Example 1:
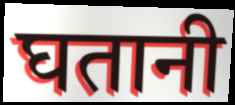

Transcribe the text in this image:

घतानी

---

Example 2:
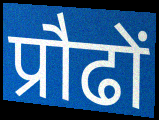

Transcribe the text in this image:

प्रौढों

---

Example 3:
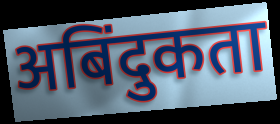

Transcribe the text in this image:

अबिंदुकता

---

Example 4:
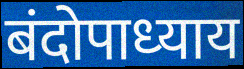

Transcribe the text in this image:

बंदोपाध्‍याय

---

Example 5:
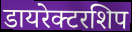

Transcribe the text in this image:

डायरेक्टरशिप